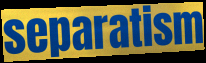
separatism